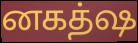
னகத்ஷ